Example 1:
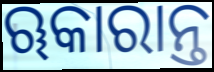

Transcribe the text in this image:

ୠକାରାନ୍ତ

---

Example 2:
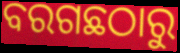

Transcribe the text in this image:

ବରଗଛଠାରୁ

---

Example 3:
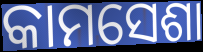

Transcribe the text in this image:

କାମସେଶା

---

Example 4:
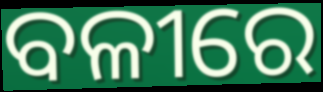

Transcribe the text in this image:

ବଳୀରେ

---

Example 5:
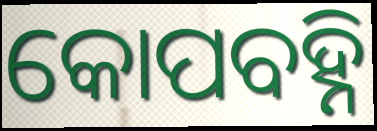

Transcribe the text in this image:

କୋପବହ୍ନି